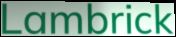
Lambrick